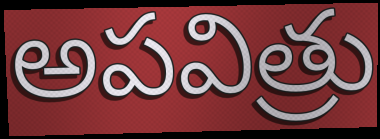
అపవిత్రు